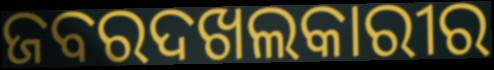
ଜବରଦଖଲକାରୀର